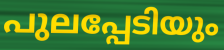
പുലപ്പേടിയും